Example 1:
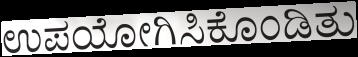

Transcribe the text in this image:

ಉಪಯೋಗಿಸಿಕೊಂಡಿತು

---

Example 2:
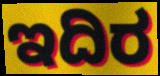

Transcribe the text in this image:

ಇದಿರ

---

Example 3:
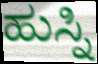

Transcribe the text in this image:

ಹುಸ್ನಿ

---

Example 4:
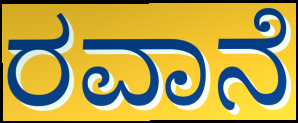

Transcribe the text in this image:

ರವಾನೆ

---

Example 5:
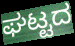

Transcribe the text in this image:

ಘಟ್ಟದ